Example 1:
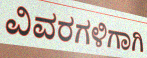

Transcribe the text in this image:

ವಿವರಗಳಿಗಾಗಿ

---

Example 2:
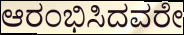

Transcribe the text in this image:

ಆರಂಭಿಸಿದವರೇ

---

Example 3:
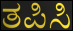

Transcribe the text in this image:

ತಪಿಸಿ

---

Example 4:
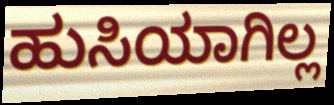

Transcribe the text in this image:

ಹುಸಿಯಾಗಿಲ್ಲ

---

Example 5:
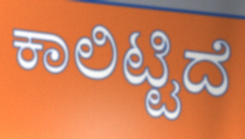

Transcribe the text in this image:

ಕಾಲಿಟ್ಟಿದೆ